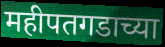
महीपतगडाच्या